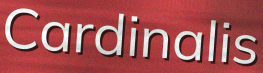
Cardinalis